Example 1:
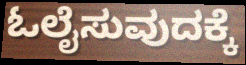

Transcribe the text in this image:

ಓಲೈಸುವುದಕ್ಕೆ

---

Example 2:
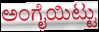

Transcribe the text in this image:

ಅಂಗೈಯಿಟ್ಟು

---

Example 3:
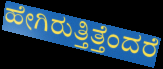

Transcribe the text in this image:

ಹೇಗಿರುತ್ತಿತ್ತೆಂದರೆ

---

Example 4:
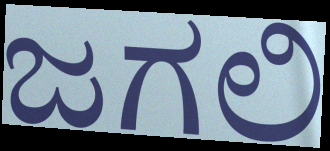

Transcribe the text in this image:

ಜಗಲಿ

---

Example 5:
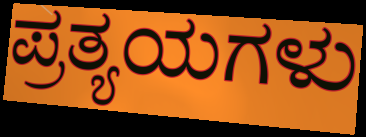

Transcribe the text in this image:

ಪ್ರತ್ಯಯಗಳು